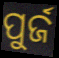
ପୁର୍ଜ